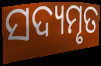
ସଦ୍ୟମୃତ